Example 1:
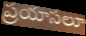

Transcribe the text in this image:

ప్రయాసలూ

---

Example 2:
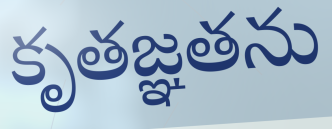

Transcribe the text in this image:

కృతజ్ఞతను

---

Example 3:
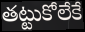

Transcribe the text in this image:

తట్టుకోలేకే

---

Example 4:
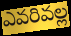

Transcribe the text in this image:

ఎవరివల్ల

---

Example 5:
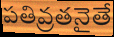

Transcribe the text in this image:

పతివ్రతనైతే